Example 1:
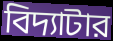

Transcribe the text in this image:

বিদ্যাটার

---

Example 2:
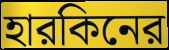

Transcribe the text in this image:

হারকিনের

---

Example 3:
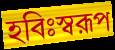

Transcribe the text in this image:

হবিঃস্বরূপ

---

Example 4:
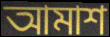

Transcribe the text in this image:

আমাশ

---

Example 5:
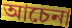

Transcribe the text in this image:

আচেনা